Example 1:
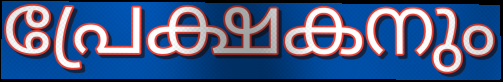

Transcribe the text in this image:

പ്രേക്ഷകനും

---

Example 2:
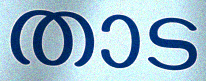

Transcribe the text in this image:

താട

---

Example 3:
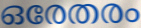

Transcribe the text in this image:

ഒരേതരം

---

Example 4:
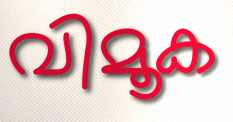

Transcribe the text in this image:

വിമൂക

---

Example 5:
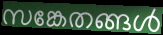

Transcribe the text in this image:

സങ്കേതങ്ങൾ